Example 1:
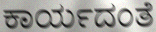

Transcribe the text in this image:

ಕಾರ್ಯದಂತೆ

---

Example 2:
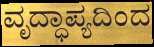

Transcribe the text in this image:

ವೃದ್ಧಾಪ್ಯದಿಂದ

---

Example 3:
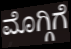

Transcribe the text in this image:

ಮೊಗ್ಗಿಗೆ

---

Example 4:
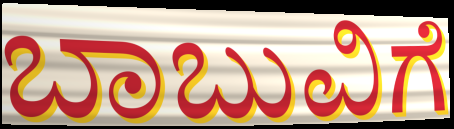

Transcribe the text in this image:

ಬಾಬುವಿಗೆ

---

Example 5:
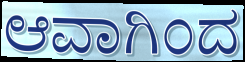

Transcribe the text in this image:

ಆವಾಗಿಂದ